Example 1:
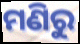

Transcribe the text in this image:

ମଣିରୁ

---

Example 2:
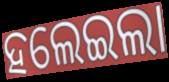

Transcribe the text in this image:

ହଲେଇଲା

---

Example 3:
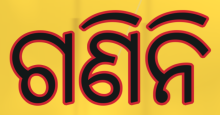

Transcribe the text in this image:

ଗଣିନି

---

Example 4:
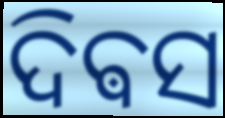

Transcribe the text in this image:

ଦିଵସ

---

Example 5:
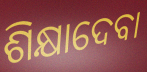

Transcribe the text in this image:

ଶିକ୍ଷାଦେବା